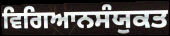
ਵਿਗਿਆਨਸੰਯੁਕਤ